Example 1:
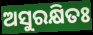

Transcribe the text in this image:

ଅସୁରକ୍ଷିତଃ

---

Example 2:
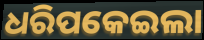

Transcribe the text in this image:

ଧରିପକେଇଲା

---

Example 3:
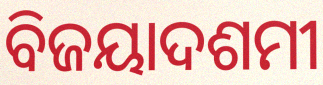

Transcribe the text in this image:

ବିଜୟାଦଶମୀ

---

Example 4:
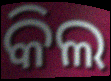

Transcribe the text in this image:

କିଲ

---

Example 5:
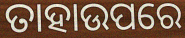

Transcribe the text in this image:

ତାହାଉପରେ